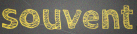
souvent